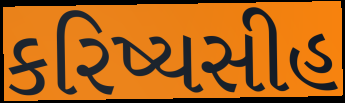
કરિષ્યસીહ